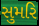
સુમરિ